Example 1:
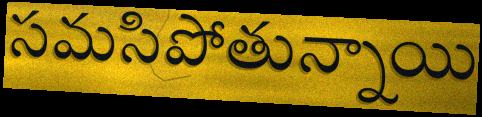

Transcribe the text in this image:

సమసిపోతున్నాయి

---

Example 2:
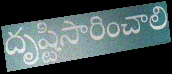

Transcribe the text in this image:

దృష్టిసారించాలి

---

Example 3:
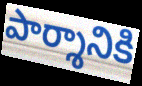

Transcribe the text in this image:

పార్శానికి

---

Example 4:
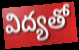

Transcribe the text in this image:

విద్యతో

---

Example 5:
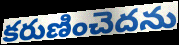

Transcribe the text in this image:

కరుణించెదను